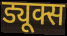
ड्यूक्स